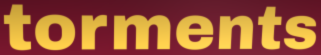
torments